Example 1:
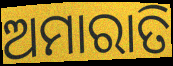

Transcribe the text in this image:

ଅମାରାତି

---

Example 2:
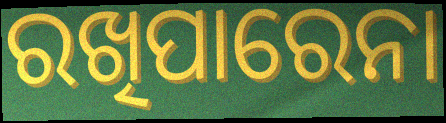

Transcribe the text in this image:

ରଖିପାରେନା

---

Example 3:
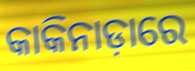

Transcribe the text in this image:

କାକିନାଡ଼ାରେ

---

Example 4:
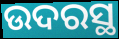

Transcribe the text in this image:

ଉଦରସ୍ଥ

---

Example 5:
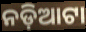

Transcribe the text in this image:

ନଡ଼ିଆଟା